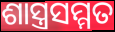
ଶାସ୍ତ୍ରସମ୍ମତ